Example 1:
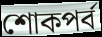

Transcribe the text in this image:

শোকপর্ব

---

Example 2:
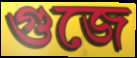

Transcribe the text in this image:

গুজে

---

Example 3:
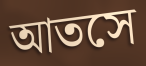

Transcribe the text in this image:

আতসে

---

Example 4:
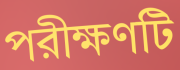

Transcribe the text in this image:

পরীক্ষণটি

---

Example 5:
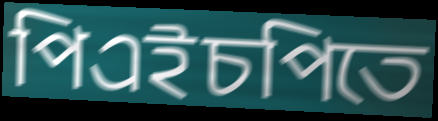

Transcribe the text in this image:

পিএইচপিতে